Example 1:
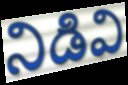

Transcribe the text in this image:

నిడివి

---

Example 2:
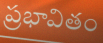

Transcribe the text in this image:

ప్రభావితం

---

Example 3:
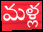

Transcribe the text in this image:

మళ్ల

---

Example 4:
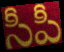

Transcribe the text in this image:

సీపీ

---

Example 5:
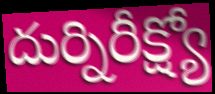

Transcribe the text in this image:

దుర్నిరీక్ష్యో